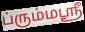
ப்ரும்மஸ்ரீ